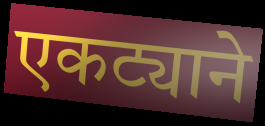
एकट्याने